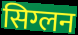
सिग्‍लन